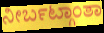
ನೀರ್ಬಟ್ಗಾಂತಾ